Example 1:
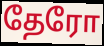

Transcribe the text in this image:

தேரோ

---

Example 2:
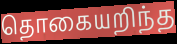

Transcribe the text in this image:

தொகையறிந்த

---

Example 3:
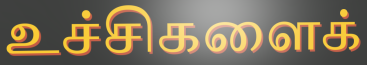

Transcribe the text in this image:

உச்சிகளைக்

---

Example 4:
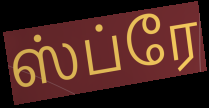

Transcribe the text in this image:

ஸ்ப்ரே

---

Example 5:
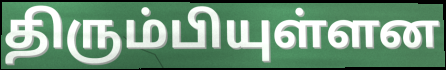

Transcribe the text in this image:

திரும்பியுள்ளன